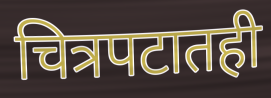
चित्रपटातही